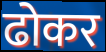
ढोकर